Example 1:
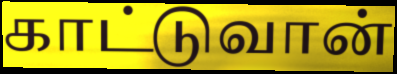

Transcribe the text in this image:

காட்டுவான்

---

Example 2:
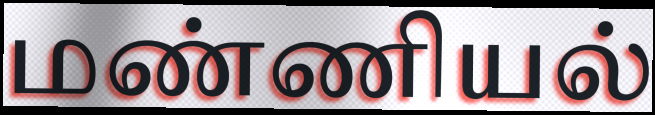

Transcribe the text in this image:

மண்ணியல்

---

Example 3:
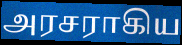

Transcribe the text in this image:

அரசராகிய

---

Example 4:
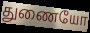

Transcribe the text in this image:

துணையோ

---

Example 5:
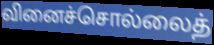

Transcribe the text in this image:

வினைச்சொல்லைத்